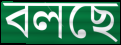
বলছে